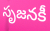
సృజనకీ